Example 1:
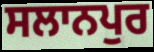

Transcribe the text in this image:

ਸਲਾਨਪੁਰ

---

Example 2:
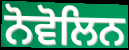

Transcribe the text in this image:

ਨੋਵੋਲਿਨ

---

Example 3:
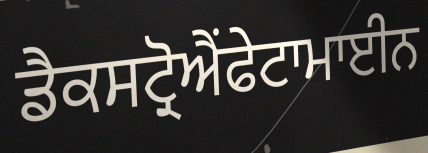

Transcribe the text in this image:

ਡੈਕਸਟ੍ਰੋਐਂਫੇਟਾਮਾਈਨ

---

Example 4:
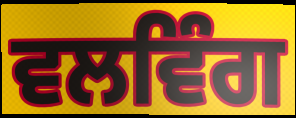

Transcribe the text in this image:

ਵਲਵਿੰਗ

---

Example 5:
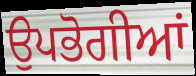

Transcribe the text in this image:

ਉਪਭੋਗੀਆਂ